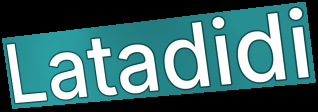
Latadidi